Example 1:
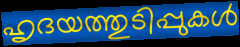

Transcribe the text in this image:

ഹൃദയത്തുടിപ്പുകൾ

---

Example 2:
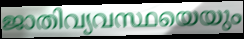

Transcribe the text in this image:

ജാതിവ്യവസ്ഥയെയും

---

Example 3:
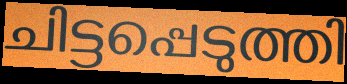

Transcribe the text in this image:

ചിട്ടപ്പെടുത്തി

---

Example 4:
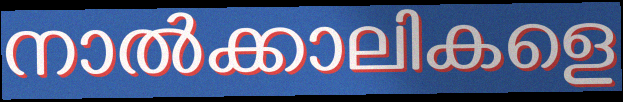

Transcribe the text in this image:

നാൽക്കാലികളെ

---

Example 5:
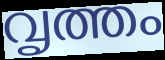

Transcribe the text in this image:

വൃത്തം